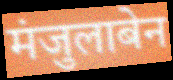
मंजुलाबेन